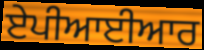
ਏਪੀਆਈਆਰ